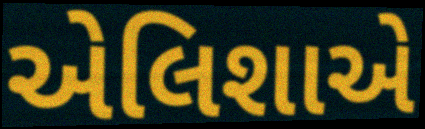
એલિશાએ